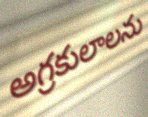
అగ్రకులాలను